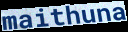
maithuna